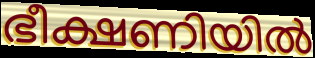
ഭീക്ഷണിയിൽ